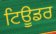
ਟਿਊਡਰ